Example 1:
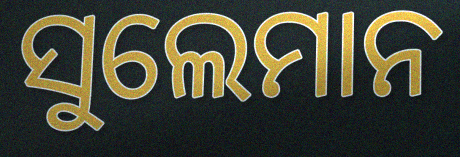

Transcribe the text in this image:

ସୁଲେମାନ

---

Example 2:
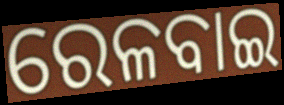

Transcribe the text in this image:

ରେଳବାଇ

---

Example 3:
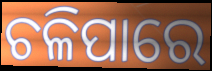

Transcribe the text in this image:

ଚଳିପାରେ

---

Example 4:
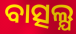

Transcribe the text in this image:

ବାତ୍ସଲ୍ଯ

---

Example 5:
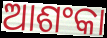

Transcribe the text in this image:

ଆଶଂକା